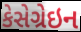
કેસેગ્રેઇન